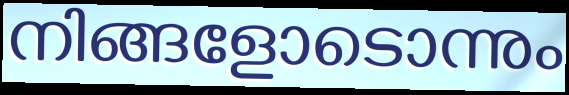
നിങ്ങളോടൊന്നും